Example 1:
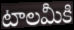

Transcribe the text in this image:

టాలమీకి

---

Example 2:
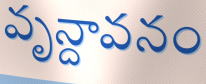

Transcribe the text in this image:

వృన్దావనం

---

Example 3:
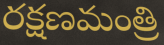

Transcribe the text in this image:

రక్షణమంత్రి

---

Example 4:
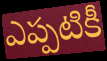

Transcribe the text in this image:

ఎప్పటికీ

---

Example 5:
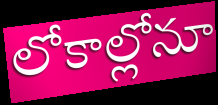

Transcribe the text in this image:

లోకాల్లోనూ